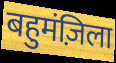
बहुमंज़िला